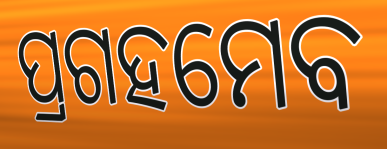
ପ୍ରଗହମେବ